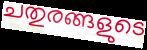
ചതുരങ്ങളുടെ